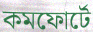
কমফোর্টে